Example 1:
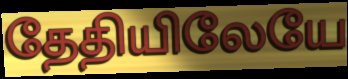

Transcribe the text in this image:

தேதியிலேயே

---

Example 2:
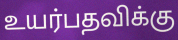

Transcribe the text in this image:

உயர்பதவிக்கு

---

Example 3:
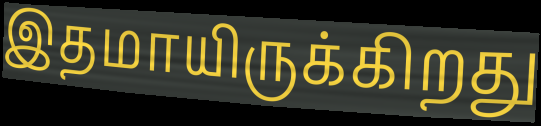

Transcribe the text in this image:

இதமாயிருக்கிறது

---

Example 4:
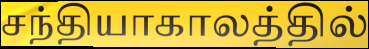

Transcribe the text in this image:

சந்தியாகாலத்தில்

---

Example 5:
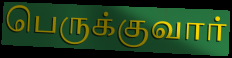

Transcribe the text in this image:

பெருக்குவார்